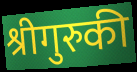
श्रीगुरुकी